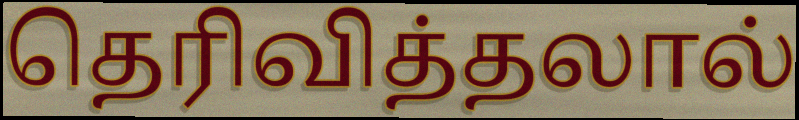
தெரிவித்தலால்